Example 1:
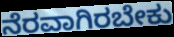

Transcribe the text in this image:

ನೆರವಾಗಿರಬೇಕು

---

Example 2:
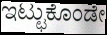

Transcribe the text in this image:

ಇಟ್ಟುಕೊಂಡೇ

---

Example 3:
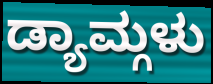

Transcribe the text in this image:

ಡ್ಯಾಮ್ಗಳು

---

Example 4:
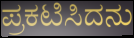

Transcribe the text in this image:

ಪ್ರಕಟಿಸಿದನು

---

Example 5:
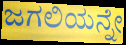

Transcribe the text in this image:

ಜಗಲಿಯನ್ನೇ